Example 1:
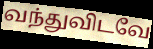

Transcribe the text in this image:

வந்துவிடவே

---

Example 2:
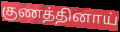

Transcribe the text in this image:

குணத்தினாய்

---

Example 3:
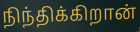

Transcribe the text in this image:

நிந்திக்கிறான்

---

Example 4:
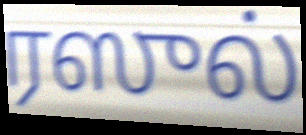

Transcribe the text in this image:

ரஸுல்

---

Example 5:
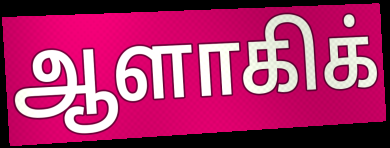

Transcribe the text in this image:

ஆளாகிக்